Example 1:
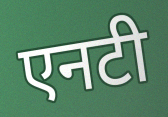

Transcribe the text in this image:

एनटी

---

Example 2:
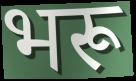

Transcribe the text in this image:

भरू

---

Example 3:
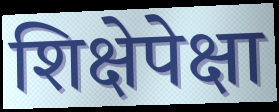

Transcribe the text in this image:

शिक्षेपेक्षा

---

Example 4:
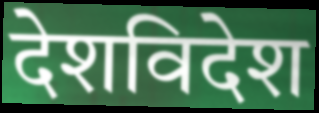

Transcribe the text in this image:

देशविदेश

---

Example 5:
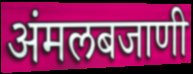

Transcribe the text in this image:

अंमलबजाणी